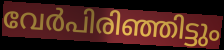
വേർപിരിഞ്ഞിട്ടും